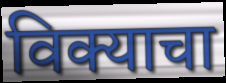
विक्याचा